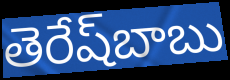
తెరేష్‌బాబు